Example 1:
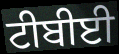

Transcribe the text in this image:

ਟੀਬੀਈ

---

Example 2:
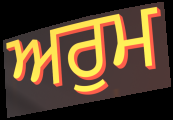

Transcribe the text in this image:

ਅਰੁਮ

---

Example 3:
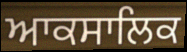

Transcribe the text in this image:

ਆਕਸਾਲਿਕ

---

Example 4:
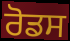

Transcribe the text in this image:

ਰੋਡਸ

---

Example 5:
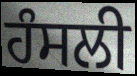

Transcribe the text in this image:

ਹੰਸਲੀ